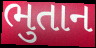
ભુતાન